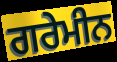
ਗਰੇਮੀਨ